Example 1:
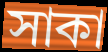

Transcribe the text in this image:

সাকা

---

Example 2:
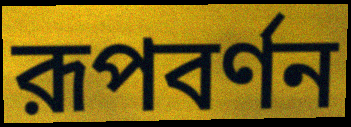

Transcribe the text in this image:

রূপবর্ণন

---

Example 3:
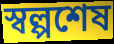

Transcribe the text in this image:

স্বল্পশেষ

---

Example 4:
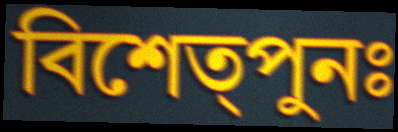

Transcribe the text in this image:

বিশেত্পুনঃ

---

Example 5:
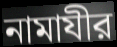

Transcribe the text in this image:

নামাযীর